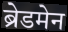
ब्रेडमेन